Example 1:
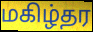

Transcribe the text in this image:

மகிழ்தர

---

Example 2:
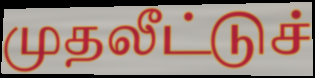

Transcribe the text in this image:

முதலீட்டுச்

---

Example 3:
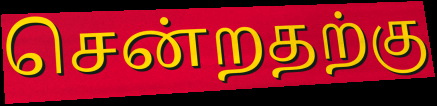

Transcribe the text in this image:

சென்றதற்கு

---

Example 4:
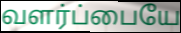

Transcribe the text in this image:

வளர்ப்பையே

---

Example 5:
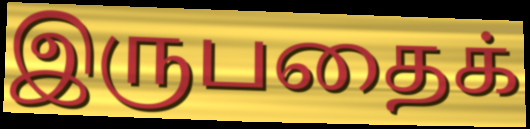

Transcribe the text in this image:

இருபதைக்